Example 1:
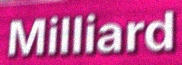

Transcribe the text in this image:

Milliard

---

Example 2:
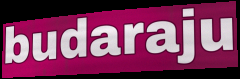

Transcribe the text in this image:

budaraju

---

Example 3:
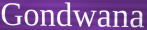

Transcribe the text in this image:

Gondwana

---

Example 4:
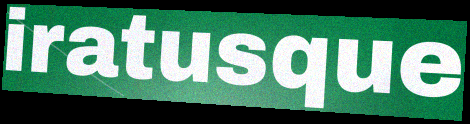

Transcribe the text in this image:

iratusque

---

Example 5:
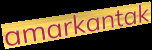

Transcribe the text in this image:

amarkantak